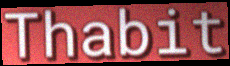
Thabit